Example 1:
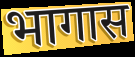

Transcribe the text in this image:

भागास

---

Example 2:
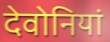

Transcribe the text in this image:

देवोनियां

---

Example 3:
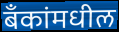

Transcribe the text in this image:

बँकांमधील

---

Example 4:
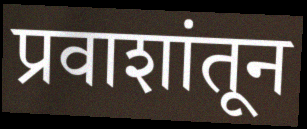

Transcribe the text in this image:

प्रवाशांतून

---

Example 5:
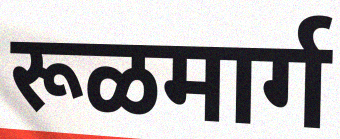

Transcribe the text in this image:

रूळमार्ग